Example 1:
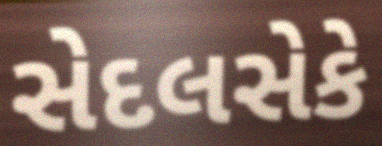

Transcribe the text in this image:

સેદલસેકે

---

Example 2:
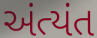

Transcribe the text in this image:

અંત્યંત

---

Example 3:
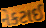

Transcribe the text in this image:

નેકટાઈ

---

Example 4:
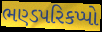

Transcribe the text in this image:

ભણ્ડપરિકપ્પો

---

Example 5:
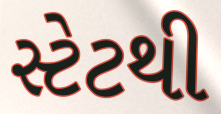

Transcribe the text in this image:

સ્ટેટથી